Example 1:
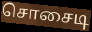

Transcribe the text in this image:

சொசைடி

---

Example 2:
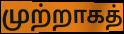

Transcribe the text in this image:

முற்றாகத்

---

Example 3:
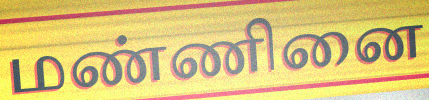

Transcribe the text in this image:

மண்ணினை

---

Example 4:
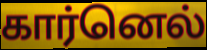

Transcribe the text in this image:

கார்னெல்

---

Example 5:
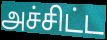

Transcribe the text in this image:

அச்சிட்ட